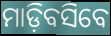
ମାଡ଼ିବସିବେ